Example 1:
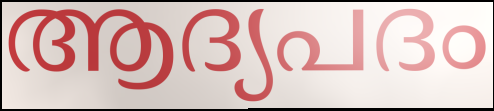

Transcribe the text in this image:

ആദ്യപദം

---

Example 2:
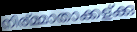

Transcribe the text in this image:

നിര്മ്മാതാക്കള്ക്കു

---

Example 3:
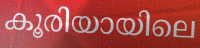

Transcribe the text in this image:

കൂരിയായിലെ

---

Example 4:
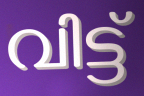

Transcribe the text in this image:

വിട്ട്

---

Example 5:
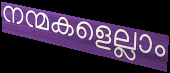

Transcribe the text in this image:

നന്മകളെല്ലാം